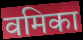
वमिका